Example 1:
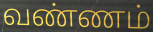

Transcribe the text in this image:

வண்ணம்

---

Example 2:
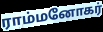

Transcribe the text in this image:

ராம்மனோகர்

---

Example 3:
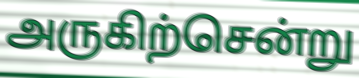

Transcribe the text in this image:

அருகிற்சென்று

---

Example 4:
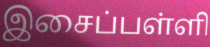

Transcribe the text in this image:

இசைப்பள்ளி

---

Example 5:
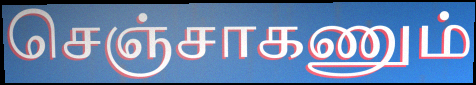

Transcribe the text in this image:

செஞ்சாகணும்